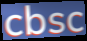
cbsc